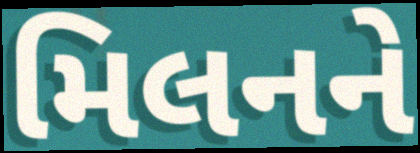
મિલનને